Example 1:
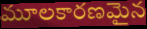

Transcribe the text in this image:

మూలకారణమైన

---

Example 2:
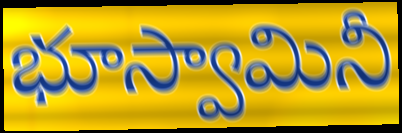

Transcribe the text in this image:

భూస్వామినీ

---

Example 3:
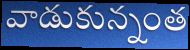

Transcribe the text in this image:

వాడుకున్నంత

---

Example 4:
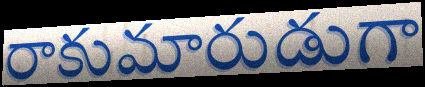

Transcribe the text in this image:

రాకుమారుడుగా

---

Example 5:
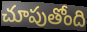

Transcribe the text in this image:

చూపుతోంది